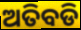
ଅତିବଡି